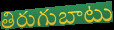
తిరుగుబాటు